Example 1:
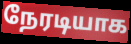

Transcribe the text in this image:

நேரடியாக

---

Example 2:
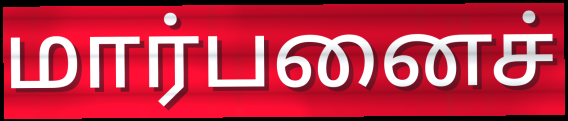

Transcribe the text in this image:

மார்பனைச்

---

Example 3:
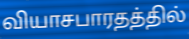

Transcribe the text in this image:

வியாசபாரதத்தில்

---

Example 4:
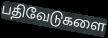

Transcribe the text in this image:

பதிவேடுகளை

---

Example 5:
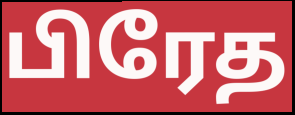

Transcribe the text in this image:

பிரேத